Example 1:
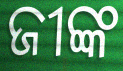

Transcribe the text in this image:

ଜୀଙ୍କ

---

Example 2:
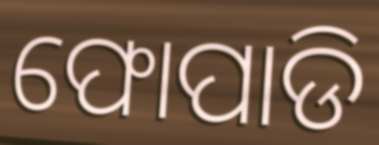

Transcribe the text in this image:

ଫୋପାଡି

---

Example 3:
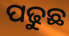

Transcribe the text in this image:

ପଢୁଛ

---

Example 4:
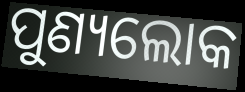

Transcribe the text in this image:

ପୁଣ୍ୟଲୋକ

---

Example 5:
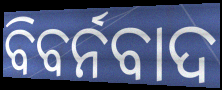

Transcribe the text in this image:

ବିବର୍ନବାଦ